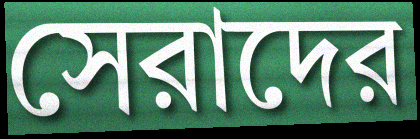
সেরাদের